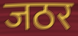
जठर